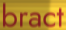
bract